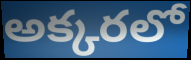
అక్కరలో